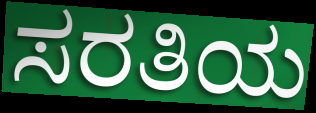
ಸರತಿಯ